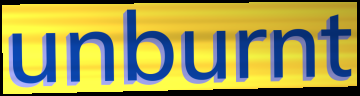
unburnt